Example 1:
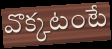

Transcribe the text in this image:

వొక్కటంటే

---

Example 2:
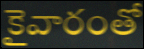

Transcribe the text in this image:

కైవారంతో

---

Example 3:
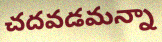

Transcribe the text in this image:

చదవడమన్నా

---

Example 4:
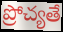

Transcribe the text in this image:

ప్రోచ్యతే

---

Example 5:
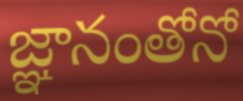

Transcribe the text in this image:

జ్ఞానంతోనో